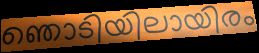
ഞൊടിയിലായിരം